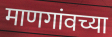
माणगांवच्या